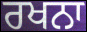
ਰਖਨਾ